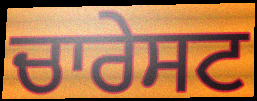
ਚਾਰੇਸਟ